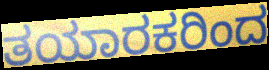
ತಯಾರಕರಿಂದ